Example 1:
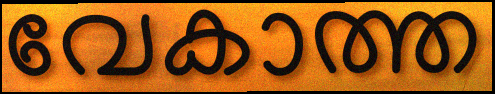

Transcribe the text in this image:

വേകാത്ത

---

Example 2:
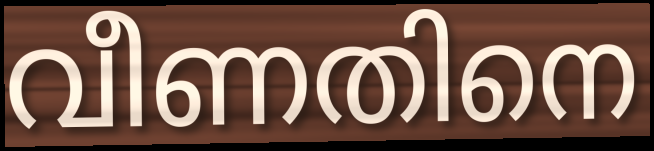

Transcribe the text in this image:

വീണതിനെ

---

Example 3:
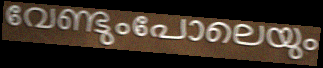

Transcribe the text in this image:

വേണ്ടുംപോലെയും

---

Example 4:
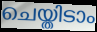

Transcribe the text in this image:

ചെയ്തിടാം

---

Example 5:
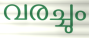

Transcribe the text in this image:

വരച്ചും